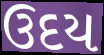
ઉદય